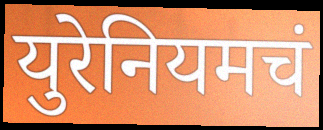
युरेनियमचं